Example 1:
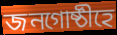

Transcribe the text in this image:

জনগোষ্ঠীহে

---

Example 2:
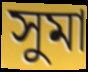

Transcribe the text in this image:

সুমা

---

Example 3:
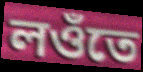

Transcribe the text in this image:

লওঁতে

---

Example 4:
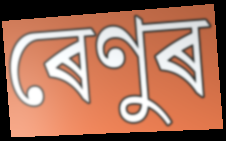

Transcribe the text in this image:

ৰেণুৰ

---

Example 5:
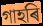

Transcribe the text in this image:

গাহৰি